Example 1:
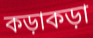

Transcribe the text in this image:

কড়াকড়া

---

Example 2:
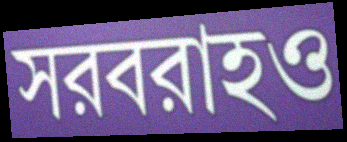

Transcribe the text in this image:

সরবরাহও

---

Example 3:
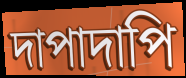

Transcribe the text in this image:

দাপাদাপি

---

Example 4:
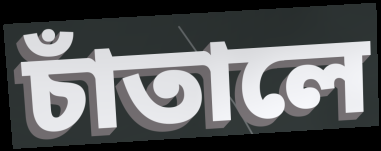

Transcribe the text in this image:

চাঁতালে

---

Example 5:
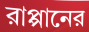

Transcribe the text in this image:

রাপ্পানের